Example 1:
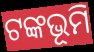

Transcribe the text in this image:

ଟଙ୍କଭୂମି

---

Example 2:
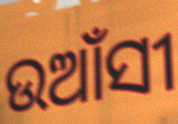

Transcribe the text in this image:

ଉଆଁସୀ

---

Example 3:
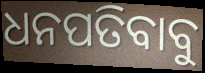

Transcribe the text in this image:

ଧନପତିବାବୁ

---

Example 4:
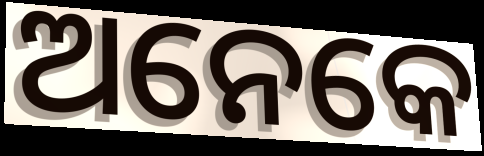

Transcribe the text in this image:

ଅନେକେ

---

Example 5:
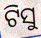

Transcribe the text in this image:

ଟିସୁ